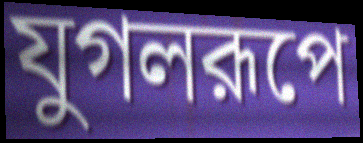
যুগলরূপে